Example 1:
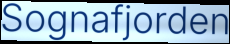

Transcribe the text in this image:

Sognafjorden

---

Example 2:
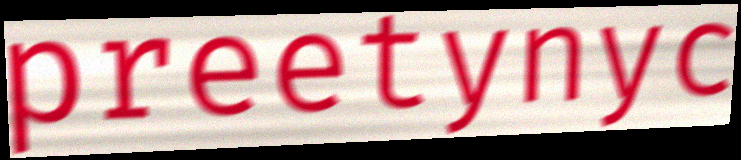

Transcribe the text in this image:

preetynyc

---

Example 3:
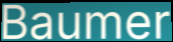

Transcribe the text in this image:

Baumer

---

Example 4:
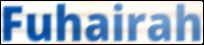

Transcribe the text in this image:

Fuhairah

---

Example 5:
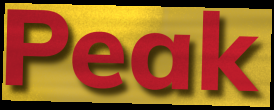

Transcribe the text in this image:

Peak